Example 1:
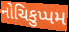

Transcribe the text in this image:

નોચિકુપ્પમ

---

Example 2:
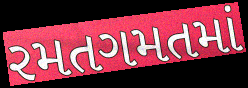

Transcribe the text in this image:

રમતગમતમાં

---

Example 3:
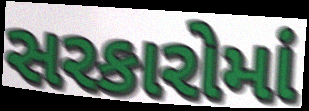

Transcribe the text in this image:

સરકારોમાં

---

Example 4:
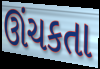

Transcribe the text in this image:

ઊંચકતા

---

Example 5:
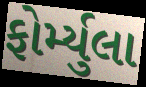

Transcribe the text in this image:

ફોર્મ્યુલા